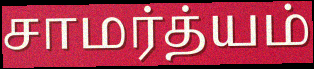
சாமர்த்யம்